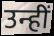
उन्हीं